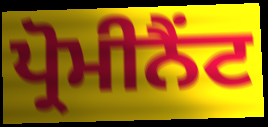
ਪ੍ਰੋਮੀਨੈਂਟ